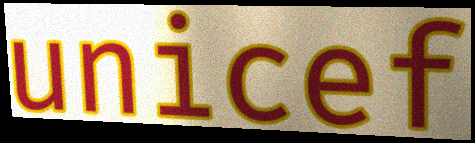
unicef